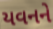
યવનને